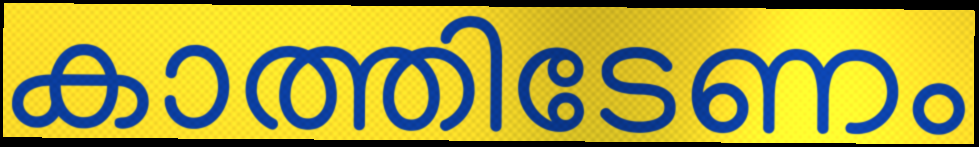
കാത്തിടേണം